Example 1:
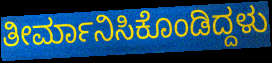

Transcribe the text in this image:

ತೀರ್ಮಾನಿಸಿಕೊಂಡಿದ್ದಳು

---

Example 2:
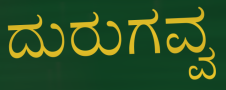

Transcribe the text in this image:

ದುರುಗವ್ವ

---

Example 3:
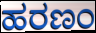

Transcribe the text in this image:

ಹರಣಂ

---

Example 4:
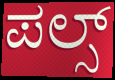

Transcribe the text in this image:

ಪಲ್ಸ್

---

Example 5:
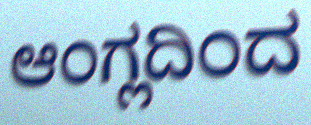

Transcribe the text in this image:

ಆಂಗ್ಲದಿಂದ